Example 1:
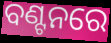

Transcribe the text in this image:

ବଣ୍ଟନରେ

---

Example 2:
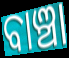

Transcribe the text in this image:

ବାଞ୍ଚା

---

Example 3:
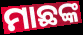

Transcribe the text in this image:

ମାଛଙ୍କ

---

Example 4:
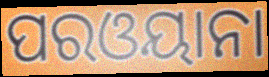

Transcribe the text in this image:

ପରଓୟାନା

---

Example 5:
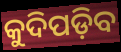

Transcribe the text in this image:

କୁଦିପଡ଼ିବ